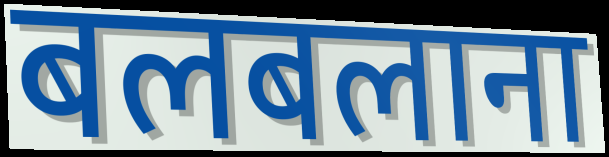
बलबलाना